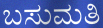
ಬಸುಮತಿ